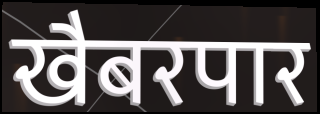
खैबरपार